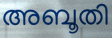
അബൂതി